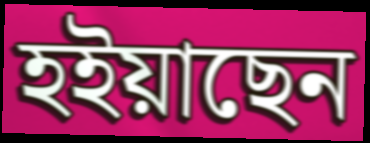
হইয়াছেন